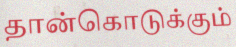
தான்கொடுக்கும்